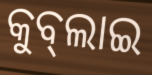
କୁବ୍‌ଲାଇ